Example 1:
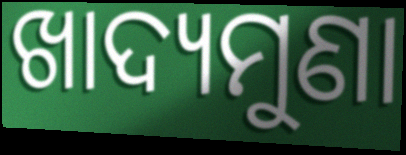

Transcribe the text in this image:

ଖାଦ୍ୟମୁଣା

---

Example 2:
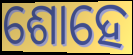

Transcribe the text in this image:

ଶୋହେ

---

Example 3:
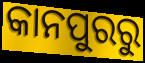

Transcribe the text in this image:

କାନପୁରରୁ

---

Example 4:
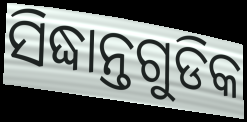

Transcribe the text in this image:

ସିଦ୍ଧାନ୍ତଗୁଡିକ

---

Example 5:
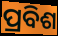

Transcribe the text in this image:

ପ୍ରବିଶ